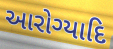
આરોગ્યાદિ